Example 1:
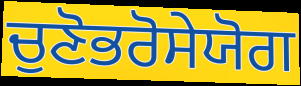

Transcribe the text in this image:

ਚੁਣੋਭਰੋਸੇਯੋਗ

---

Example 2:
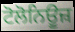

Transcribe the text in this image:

ਟੋਲੋਨਿਊਜ਼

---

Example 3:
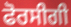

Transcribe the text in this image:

ਫੋਰਸੀਗੀ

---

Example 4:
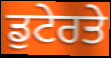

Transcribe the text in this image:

ਡੁਟੇਰਤੇ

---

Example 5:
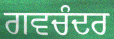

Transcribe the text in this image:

ਗਵਚੰਦਰ